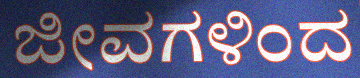
ಜೀವಗಳಿಂದ